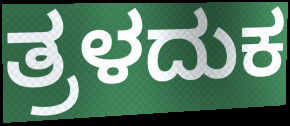
ತ್ರಳದುಕ